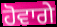
ਹੋਵਾਗੇ